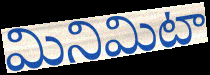
మినిమిటా